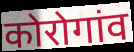
कोरोगांव